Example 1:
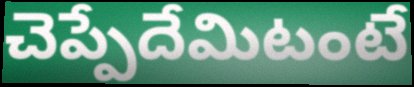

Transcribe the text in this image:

చెప్పేదేమిటంటే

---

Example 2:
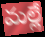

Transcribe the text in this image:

మల్లే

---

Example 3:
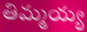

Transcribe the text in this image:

తిమ్మయ్య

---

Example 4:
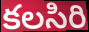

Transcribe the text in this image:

కలసిరి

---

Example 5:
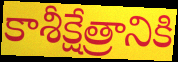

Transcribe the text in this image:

కాశీక్షేత్రానికి